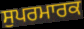
ਸੁਪਰਮਾਰਕ